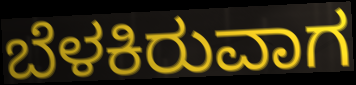
ಬೆಳಕಿರುವಾಗ